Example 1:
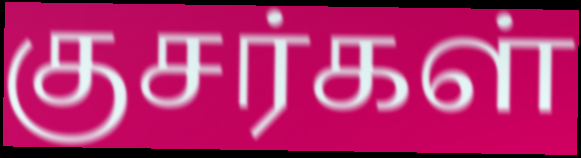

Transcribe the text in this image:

குசர்கள்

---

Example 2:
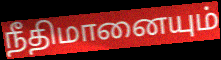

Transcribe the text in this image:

நீதிமானையும்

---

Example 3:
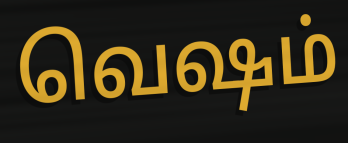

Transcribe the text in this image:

வெஷம்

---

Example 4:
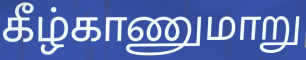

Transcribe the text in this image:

கீழ்காணுமாறு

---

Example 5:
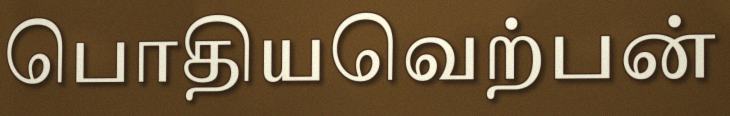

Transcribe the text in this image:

பொதியவெற்பன்